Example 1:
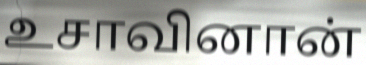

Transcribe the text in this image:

உசாவினான்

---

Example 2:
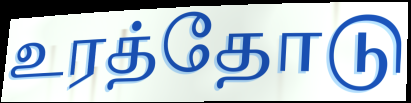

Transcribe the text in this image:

உரத்தோடு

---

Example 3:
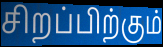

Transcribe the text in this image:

சிறப்பிற்கும்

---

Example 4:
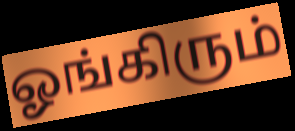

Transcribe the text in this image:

ஓங்கிரும்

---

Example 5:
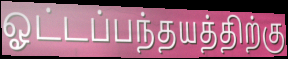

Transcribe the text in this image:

ஓட்டப்பந்தயத்திற்கு